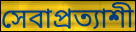
সেবাপ্রত্যাশী